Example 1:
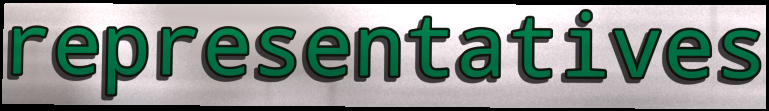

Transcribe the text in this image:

representatives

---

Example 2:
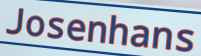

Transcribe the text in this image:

Josenhans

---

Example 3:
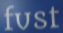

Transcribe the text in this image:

fust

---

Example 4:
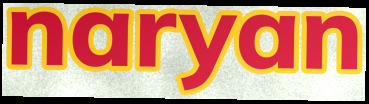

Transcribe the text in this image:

naryan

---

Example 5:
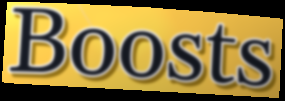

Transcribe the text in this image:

Boosts